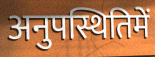
अनुपस्थितिमें